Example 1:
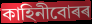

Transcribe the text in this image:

কাহিনীবোৰৰ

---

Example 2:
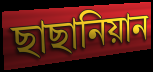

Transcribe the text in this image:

ছাছানিয়ান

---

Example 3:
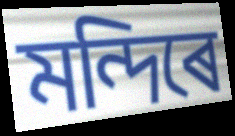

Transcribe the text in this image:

মন্দিৰে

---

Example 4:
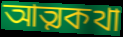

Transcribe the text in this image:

আত্মকথা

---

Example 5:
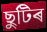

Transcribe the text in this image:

ছুটিৰ